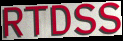
RTDSS